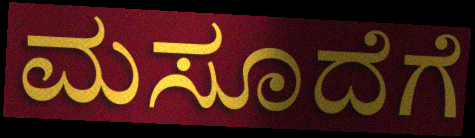
ಮಸೂದೆಗೆ